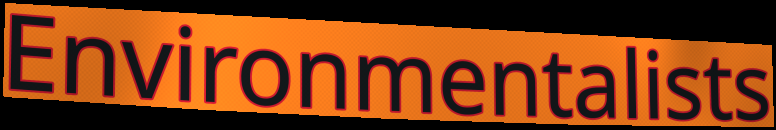
Environmentalists